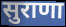
सुराणा